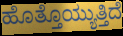
ಹೊತ್ತೊಯ್ಯುತ್ತಿದೆ